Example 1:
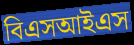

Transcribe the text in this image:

বিএসআইএস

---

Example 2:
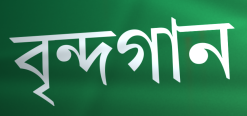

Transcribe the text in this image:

বৃন্দগান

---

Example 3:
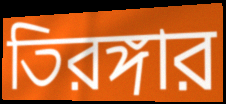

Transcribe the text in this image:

তিরঙ্গার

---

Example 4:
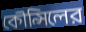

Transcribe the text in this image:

কৌন্সিলের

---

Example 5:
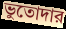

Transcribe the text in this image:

ভুতোদার